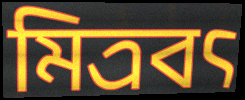
মিত্রবৎ